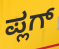
ಪ್ಲಗ್